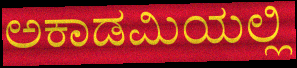
ಅಕಾಡಮಿಯಲ್ಲಿ